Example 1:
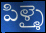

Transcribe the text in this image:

పిళ్ళై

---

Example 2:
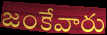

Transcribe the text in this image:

జంకేవారు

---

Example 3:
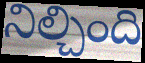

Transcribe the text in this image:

నిల్చింది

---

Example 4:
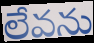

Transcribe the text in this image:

లేవను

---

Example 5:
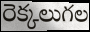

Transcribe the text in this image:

రెక్కలుగల